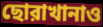
ছোরাখানাও